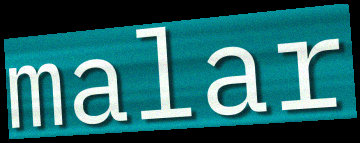
malar